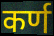
कर्ण